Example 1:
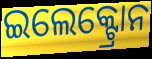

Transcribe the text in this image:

ଇଲେକ୍ଟ୍ରୋନ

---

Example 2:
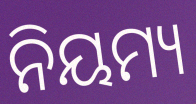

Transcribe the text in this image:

ନିୟମ୍ୟ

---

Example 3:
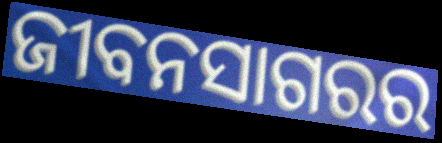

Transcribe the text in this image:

ଜୀବନସାଗରର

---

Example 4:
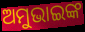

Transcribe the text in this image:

ଅମୁଭାଇଙ୍କ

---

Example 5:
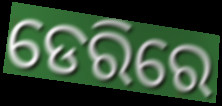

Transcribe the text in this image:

ଡେରିରେ